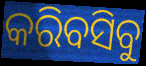
କରିବସିବୁ